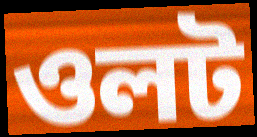
ওলট